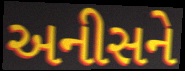
અનીસને